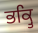
ਭਕ੍ਤਿ